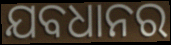
ଯବଧାନର